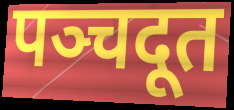
पञ्चदूत